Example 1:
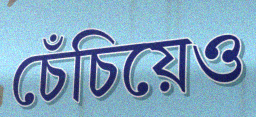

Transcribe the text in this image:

চেঁচিয়েও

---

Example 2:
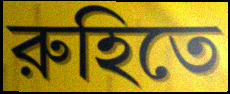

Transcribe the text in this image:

রুহিতে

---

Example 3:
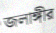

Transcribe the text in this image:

জলাঙ্গীর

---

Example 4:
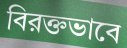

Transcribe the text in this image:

বিরক্তভাবে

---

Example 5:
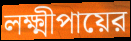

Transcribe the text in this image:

লক্ষ্মীপায়ের